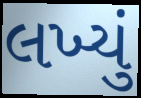
લખ્યું